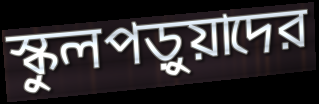
স্কুলপড়ুয়াদের